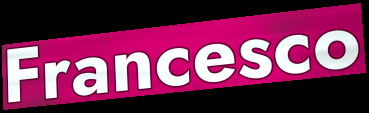
Francesco